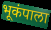
भूकंपाला